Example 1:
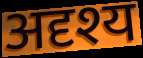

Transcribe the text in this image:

अदृश्य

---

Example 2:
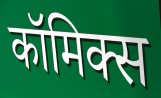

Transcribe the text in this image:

कॉमिक्स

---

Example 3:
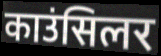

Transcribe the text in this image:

काउंसिलर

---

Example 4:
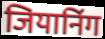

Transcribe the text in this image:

जियानिंग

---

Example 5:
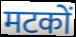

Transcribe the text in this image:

मटकों